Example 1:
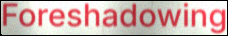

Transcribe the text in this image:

Foreshadowing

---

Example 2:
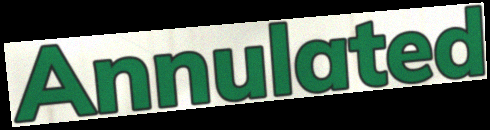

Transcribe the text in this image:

Annulated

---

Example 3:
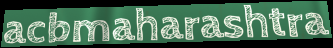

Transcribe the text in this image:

acbmaharashtra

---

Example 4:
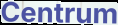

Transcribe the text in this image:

Centrum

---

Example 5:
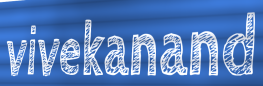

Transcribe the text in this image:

vivekanand